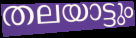
തലയാട്ടും